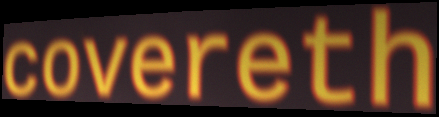
covereth